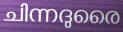
ചിന്നദുരൈ